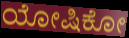
ಯೋಷಿಕೋ